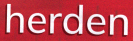
herden